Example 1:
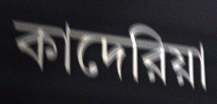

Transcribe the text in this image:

কাদেরিয়া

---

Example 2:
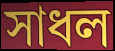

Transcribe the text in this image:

সাধল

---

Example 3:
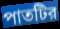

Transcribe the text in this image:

পাতটির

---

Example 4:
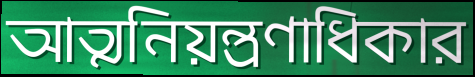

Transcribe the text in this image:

আত্মনিয়ন্ত্রণাধিকার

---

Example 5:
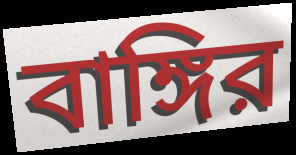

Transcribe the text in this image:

বাঙ্গির